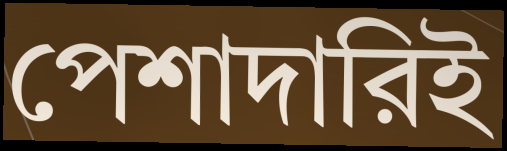
পেশাদারিই